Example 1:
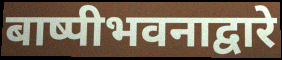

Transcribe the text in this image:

बाष्पीभवनाद्वारे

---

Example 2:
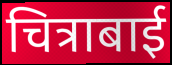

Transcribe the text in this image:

चित्राबाई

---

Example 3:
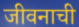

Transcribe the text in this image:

जीवनाची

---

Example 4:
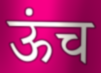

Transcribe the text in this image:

ऊंच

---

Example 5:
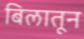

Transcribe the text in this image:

बिलातून